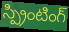
స్ప్రింటింగ్